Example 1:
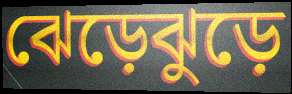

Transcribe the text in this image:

ঝেড়েঝুড়ে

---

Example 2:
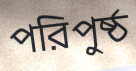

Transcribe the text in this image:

পরিপুষ্ঠ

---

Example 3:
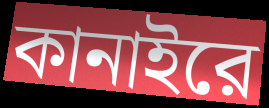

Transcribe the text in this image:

কানাইরে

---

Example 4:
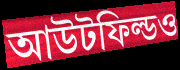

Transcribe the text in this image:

আউটফিল্ডও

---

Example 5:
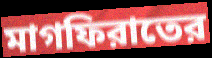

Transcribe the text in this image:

মাগফিরাতের